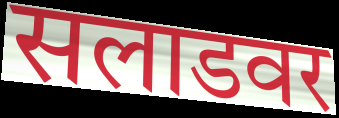
सलाडवर